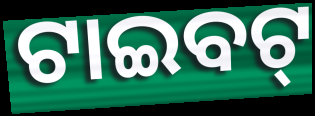
ଟାଇବଟ୍